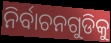
ନିର୍ବାଚନଗୁଡିକୁ